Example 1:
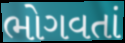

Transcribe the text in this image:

ભોગવતાં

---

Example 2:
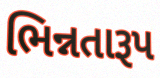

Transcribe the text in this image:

ભિન્નતારૂપ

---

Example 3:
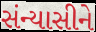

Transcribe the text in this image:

સંન્યાસીને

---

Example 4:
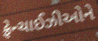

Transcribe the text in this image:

ફ્રેન્ચાઈઝીઓને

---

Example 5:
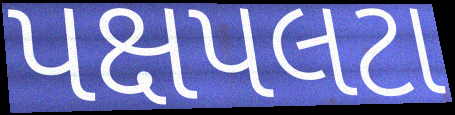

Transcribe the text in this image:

પક્ષપલટા